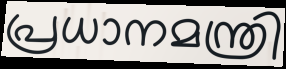
പ്രധാനമന്ത്രി